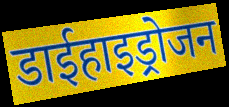
डाईहाइड्रोजन